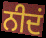
ਨੀਦਂ